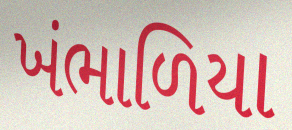
ખંભાળિયા